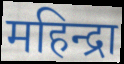
महिन्द्रा